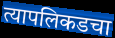
त्यापलिकडचा